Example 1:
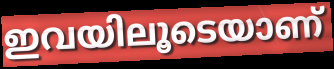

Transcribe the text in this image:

ഇവയിലൂടെയാണ്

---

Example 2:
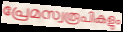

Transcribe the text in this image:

പ്രേമസ്വരൂപികളും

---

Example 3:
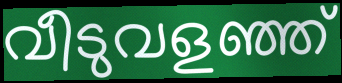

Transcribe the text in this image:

വീടുവളഞ്ഞ്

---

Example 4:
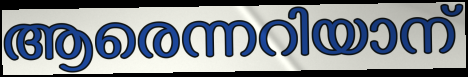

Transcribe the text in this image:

ആരെന്നറിയാന്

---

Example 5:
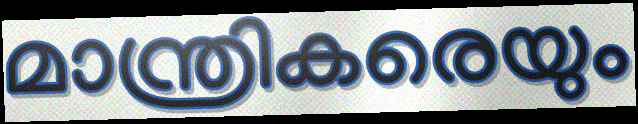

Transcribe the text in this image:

മാന്ത്രികരെയും